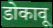
डोकावू